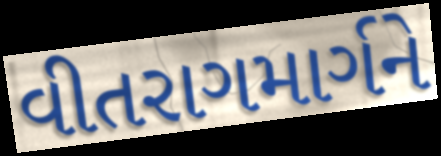
વીતરાગમાર્ગને